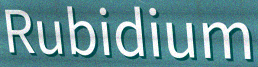
Rubidium